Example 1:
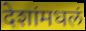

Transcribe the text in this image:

देशांमधलं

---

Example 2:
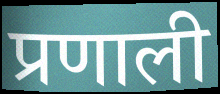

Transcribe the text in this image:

प्रणाली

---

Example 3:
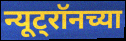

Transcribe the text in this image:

न्यूट्रॉनच्या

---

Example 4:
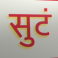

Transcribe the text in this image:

सुटं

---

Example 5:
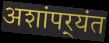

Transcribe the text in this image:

अशांपर्यंत